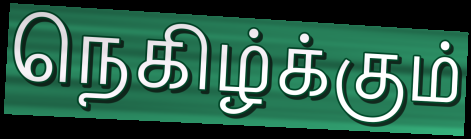
நெகிழ்க்கும்